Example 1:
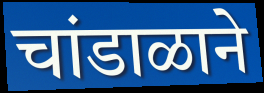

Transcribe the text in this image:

चांडाळाने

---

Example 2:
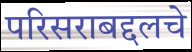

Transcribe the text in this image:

परिसराबद्दलचे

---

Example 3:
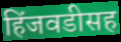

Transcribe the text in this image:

हिंजवडीसह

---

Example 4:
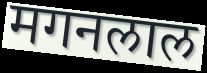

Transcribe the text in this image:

मगनलाल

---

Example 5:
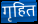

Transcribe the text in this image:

गृहित